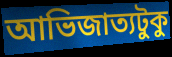
আভিজাত্যটুকু